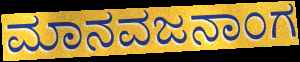
ಮಾನವಜನಾಂಗ